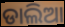
ଡାଲିଆ